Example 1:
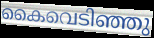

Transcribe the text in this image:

കൈവെടിഞ്ഞു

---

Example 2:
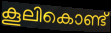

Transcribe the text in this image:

കൂലികൊണ്ട്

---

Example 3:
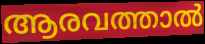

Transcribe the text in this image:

ആരവത്താൽ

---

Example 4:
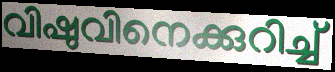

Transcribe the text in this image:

വിഷുവിനെക്കുറിച്ച്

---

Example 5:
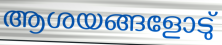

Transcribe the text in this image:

ആശയങ്ങളോടു്